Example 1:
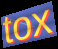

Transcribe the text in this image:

tox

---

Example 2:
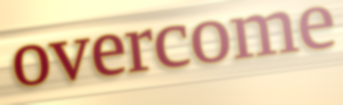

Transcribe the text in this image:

overcome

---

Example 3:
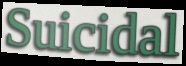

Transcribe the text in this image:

Suicidal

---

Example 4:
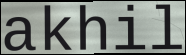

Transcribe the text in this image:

akhil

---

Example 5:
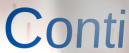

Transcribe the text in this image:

Conti